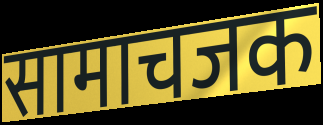
सामाचजक